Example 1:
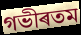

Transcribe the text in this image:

গভীৰতম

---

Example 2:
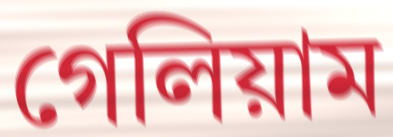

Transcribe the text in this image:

গেলিয়াম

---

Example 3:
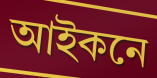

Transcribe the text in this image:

আইকনে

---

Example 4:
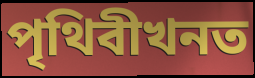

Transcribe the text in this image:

পৃথিবীখনত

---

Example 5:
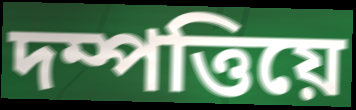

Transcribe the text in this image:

দম্পত্তিয়ে